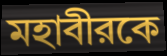
মহাবীরকে